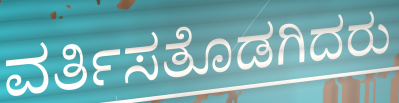
ವರ್ತಿಸತೊಡಗಿದರು